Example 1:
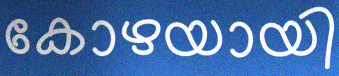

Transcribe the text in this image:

കോഴയായി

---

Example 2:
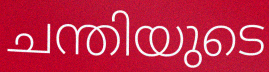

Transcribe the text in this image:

ചന്തിയുടെ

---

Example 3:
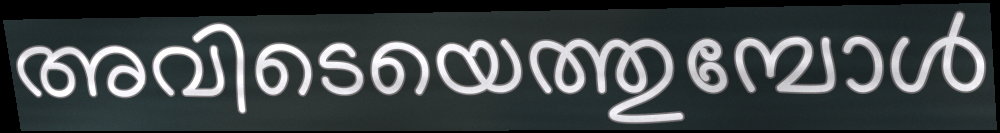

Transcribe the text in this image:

അവിടെയെത്തുമ്പോൾ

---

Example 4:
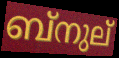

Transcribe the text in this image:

ബ്നുല്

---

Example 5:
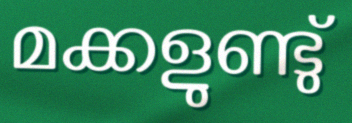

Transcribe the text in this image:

മക്കളുണ്ടു്